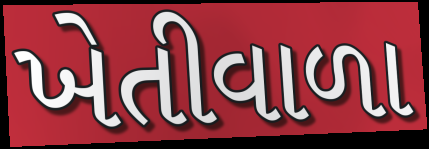
ખેતીવાળા